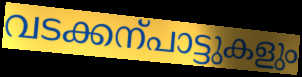
വടക്കന്പാട്ടുകളും